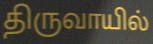
திருவாயில்